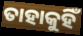
ତାହାକୁହିଁ